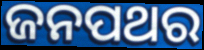
ଜନପଥର